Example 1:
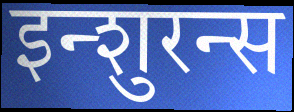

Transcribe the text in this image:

इन्शुरन्स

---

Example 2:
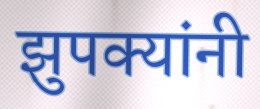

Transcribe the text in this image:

झुपक्यांनी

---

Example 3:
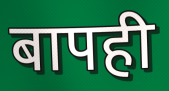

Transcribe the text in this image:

बापही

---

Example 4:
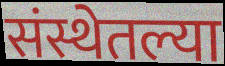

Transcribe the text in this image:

संस्थेतल्या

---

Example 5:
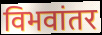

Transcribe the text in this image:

विभवांतर